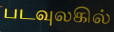
படவுலகில்